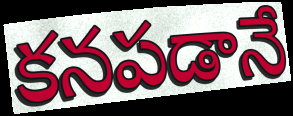
కనపడానే